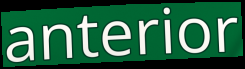
anterior